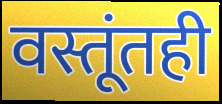
वस्तूंतही